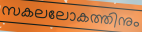
സകലലോകത്തിനും